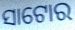
ସାଟୋର